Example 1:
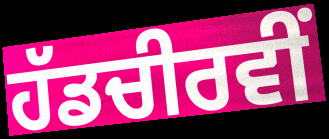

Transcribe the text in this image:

ਹੱਡਚੀਰਵੀਂ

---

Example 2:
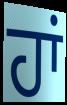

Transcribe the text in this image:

ਹਾਂ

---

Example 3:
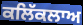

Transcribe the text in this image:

ਕਲਿੱਕਲਾਅ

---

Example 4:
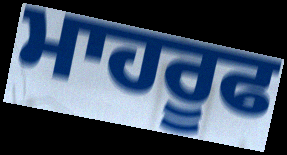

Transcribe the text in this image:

ਮਾਹਰੂਫ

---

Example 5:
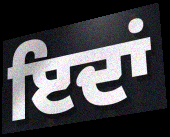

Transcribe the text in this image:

ਇਦਾਂ